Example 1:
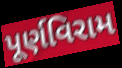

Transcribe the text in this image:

પૂર્ણવિરામ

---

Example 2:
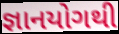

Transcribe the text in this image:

જ્ઞાનયોગથી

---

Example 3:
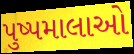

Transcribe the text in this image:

પુષ્પમાલાઓ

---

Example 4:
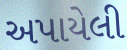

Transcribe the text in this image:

અપાયેલી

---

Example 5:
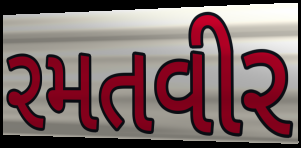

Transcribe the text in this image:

રમતવીર